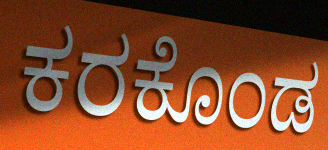
ಕರಕೊಂಡ